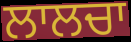
ਲਾਲਚਾ